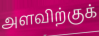
அளவிற்குக்